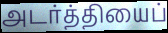
அடர்த்தியைப்